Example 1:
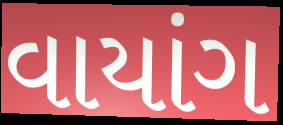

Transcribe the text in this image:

વાયાંગ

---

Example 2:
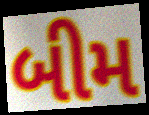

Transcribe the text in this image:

બીમ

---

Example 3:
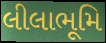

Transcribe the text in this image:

લીલાભૂમિ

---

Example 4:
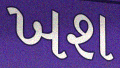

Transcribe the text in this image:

ખશ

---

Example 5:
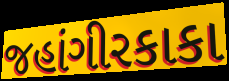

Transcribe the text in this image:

જહાંગીરકાકા